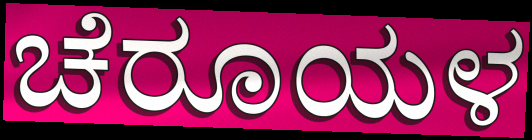
ಚೆರೂಯಳ